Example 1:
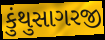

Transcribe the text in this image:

કુંથુસાગરજી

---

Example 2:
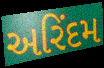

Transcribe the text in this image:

અરિંદમ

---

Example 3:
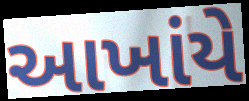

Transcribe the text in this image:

આખાંયે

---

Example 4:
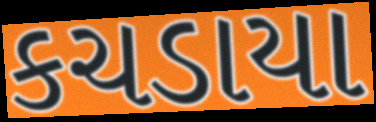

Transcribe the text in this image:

કચડાયા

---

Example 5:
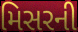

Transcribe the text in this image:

મિસરની